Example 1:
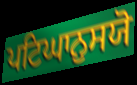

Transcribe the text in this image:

ਪਟਿਘਾਨੁਸਯੋ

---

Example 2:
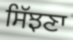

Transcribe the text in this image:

ਸਿੱਝਣਾ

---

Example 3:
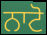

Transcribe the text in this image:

ਨਾਟੋ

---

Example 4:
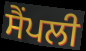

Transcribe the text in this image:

ਸੈਂਪਲੀ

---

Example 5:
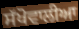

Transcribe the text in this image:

ਸੱਖੋਵਾਲੀਆ